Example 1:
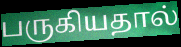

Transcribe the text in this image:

பருகியதால்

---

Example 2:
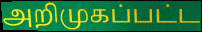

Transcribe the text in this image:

அறிமுகப்பட்ட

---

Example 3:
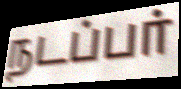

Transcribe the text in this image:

நடப்பர்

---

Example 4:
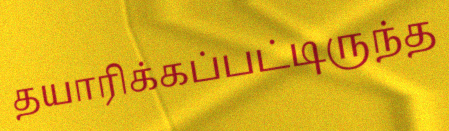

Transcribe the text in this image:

தயாரிக்கப்பட்டிருந்த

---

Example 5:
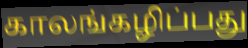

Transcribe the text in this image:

காலங்கழிப்பது